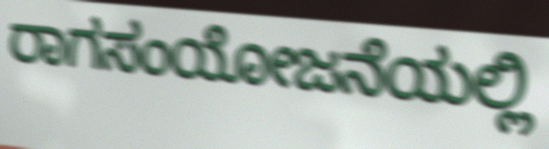
ರಾಗಸಂಯೋಜನೆಯಲ್ಲಿ